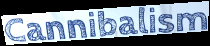
Cannibalism